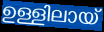
ഉള്ളിലായ്